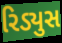
રિડ્યુસ